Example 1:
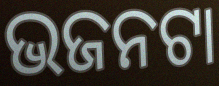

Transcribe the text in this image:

ଭଜନଟା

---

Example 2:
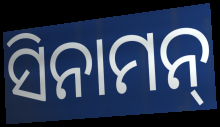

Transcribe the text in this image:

ସିନାମନ୍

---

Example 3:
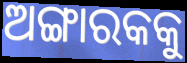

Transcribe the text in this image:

ଅଙ୍ଗାରକକୁ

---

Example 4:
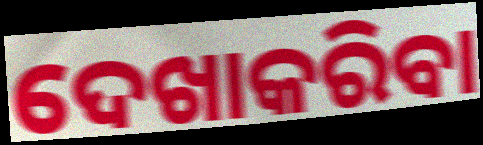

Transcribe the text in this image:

ଦେଖାକରିବା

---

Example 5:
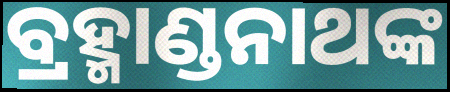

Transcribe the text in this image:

ବ୍ରହ୍ମାଣ୍ଡନାଥଙ୍କ